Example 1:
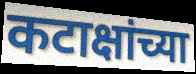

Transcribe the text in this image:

कटाक्षांच्या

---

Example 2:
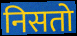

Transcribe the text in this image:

निसतो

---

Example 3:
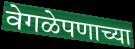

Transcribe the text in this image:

वेगळेपणाच्या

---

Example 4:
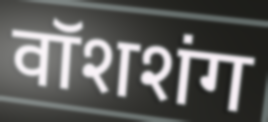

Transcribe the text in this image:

वॉशशंग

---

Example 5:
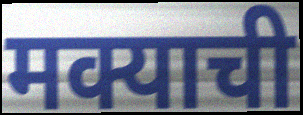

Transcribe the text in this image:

मक्याची